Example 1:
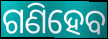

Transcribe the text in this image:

ଗଣିହେବ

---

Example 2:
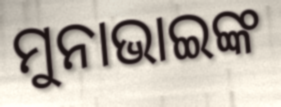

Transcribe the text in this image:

ମୁନାଭାଇଙ୍କ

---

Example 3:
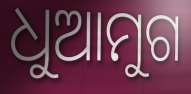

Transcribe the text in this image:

ଧୁଆମୁଗ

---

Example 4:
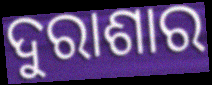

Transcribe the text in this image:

ଦୁରାଶାର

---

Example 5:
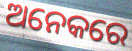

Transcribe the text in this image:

ଅନେକରେ